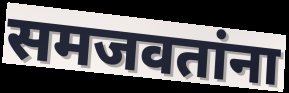
समजवतांना